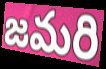
జమరి